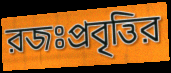
রজঃপ্রবৃত্তির